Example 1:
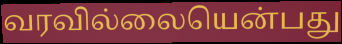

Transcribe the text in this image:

வரவில்லையென்பது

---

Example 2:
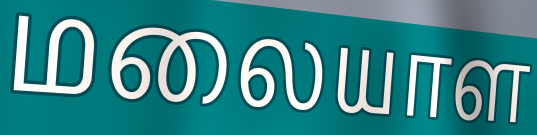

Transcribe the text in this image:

மலையாள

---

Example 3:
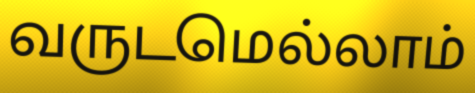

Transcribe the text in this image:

வருடமெல்லாம்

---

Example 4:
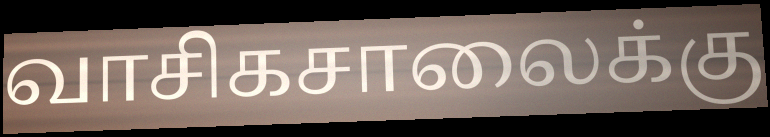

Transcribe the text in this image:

வாசிகசாலைக்கு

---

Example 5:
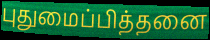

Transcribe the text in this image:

புதுமைப்பித்தனை